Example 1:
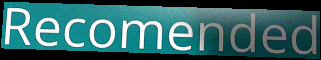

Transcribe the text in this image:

Recomended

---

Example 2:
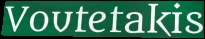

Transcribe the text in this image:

Voutetakis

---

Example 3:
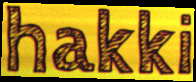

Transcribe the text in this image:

hakki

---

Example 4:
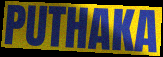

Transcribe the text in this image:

PUTHAKA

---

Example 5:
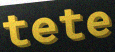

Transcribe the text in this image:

tete